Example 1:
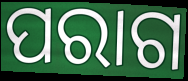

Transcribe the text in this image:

ପରାଗ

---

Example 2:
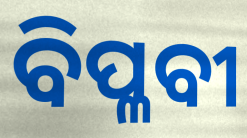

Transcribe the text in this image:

ବିପ୍ଳବୀ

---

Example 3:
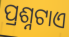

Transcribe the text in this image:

ପ୍ରଶ୍ନଟାଏ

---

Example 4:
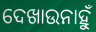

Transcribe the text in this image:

ଦେଖାଉନାହୁଁ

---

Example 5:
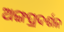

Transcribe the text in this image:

ଅଙ୍ଗପ୍ରଦର୍ଶନ